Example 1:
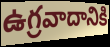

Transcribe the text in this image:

ఉగ్రవాదానికి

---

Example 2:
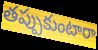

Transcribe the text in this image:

తప్పుకుంటారా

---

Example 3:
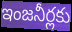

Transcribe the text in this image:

ఇంజనీర్లకు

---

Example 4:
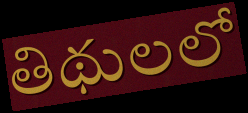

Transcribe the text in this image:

తిథులలో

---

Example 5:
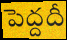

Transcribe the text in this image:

పెద్దదీ